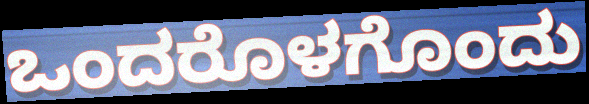
ಒಂದರೊಳಗೊಂದು